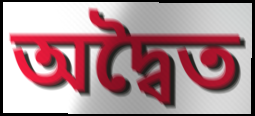
অদ্বৈত